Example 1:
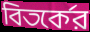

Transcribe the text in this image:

বিতর্কের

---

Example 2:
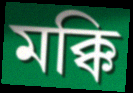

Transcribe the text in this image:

মক্কি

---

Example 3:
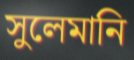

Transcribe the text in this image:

সুলেমানি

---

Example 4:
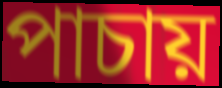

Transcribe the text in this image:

পাচায়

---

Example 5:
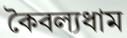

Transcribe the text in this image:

কৈবল্যধাম